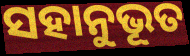
ସହାନୁଭୂତ